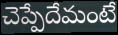
చెప్పేదేమంటే